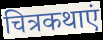
चित्रकथाएं